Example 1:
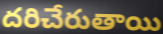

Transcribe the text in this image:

దరిచేరుతాయి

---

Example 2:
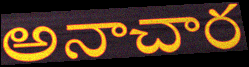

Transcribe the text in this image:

అనాచార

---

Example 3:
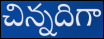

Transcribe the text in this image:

చిన్నదిగా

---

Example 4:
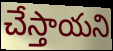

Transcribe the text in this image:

చేస్తాయని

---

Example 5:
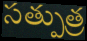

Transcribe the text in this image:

సత్పుత్ర